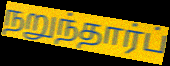
நறுந்தார்ப்